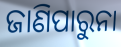
ଜାଣିପାରୁନା